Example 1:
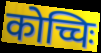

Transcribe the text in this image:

कोच्चिः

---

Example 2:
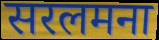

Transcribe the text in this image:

सरलमना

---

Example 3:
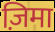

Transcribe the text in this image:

ज़िमा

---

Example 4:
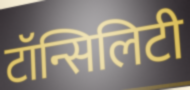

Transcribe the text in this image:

टॉन्सिलिटी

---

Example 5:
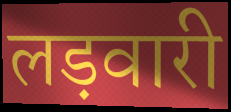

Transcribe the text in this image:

लड़वारी